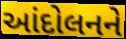
આંદોલનને